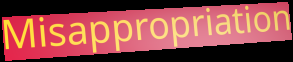
Misappropriation